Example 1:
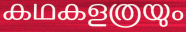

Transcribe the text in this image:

കഥകളത്രയും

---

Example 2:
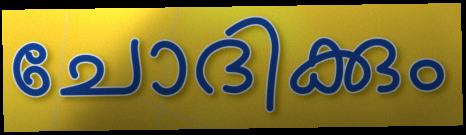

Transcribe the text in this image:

ചോദിക്കും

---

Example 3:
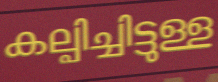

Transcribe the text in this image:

കല്പിച്ചിട്ടുള്ള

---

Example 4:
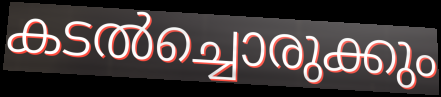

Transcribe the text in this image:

കടൽച്ചൊരുക്കും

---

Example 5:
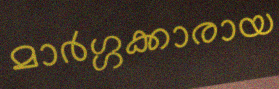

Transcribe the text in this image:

മാർഗ്ഗക്കാരായ